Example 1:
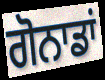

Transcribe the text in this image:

ਗੋਨਾਡਾਂ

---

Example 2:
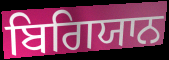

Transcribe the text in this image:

ਬਿਗਿਯਾਨ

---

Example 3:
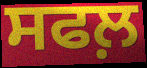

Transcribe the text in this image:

ਸਫਲ਼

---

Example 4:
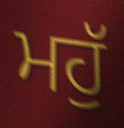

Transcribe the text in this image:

ਮਹੁੱ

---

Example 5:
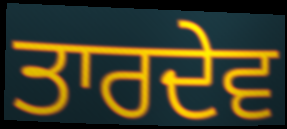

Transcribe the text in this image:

ਤਾਰਦੇਵ